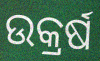
ଉକ୍ରର୍ଷ